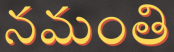
నమంతి